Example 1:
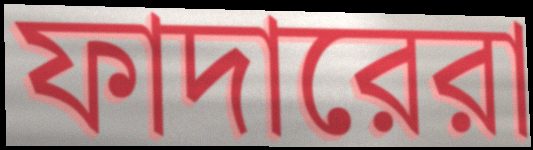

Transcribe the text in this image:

ফাদারেরা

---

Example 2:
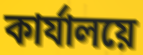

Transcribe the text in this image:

কার্যালয়ে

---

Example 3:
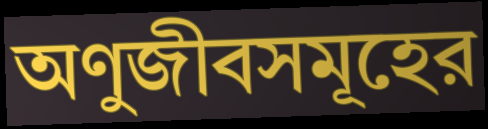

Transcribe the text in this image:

অণুজীবসমূহের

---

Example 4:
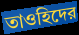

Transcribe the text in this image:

তাওহিদের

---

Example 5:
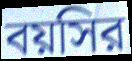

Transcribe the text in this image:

বয়সির